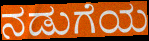
ನಡುಗೆಯ